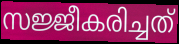
സജ്ജീകരിച്ചത്